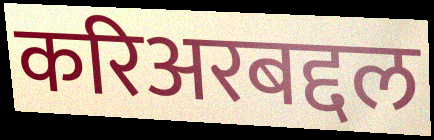
करिअरबद्दल